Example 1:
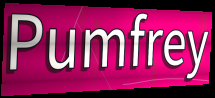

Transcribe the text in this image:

Pumfrey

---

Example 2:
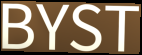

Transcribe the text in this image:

BYST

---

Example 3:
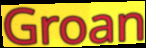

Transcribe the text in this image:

Groan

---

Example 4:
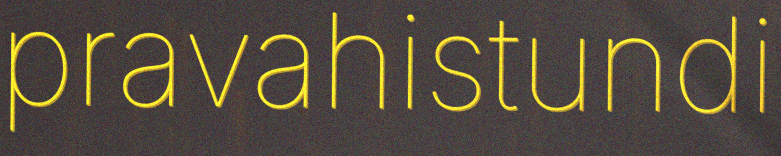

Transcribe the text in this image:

pravahistundi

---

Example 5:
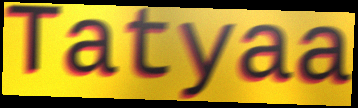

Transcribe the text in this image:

Tatyaa